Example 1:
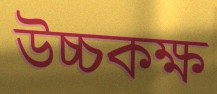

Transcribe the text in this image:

উচ্চকক্ষ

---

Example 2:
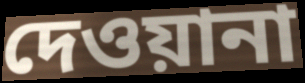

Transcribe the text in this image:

দেওয়ানা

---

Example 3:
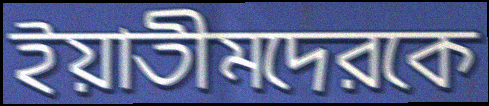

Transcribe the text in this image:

ইয়াতীমদেরকে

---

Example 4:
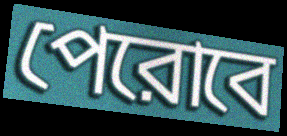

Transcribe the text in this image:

পেরোবে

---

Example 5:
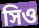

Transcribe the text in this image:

সিও